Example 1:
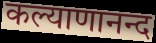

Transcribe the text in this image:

कल्याणानन्द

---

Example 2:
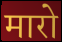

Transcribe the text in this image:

मारो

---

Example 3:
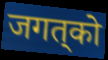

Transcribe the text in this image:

जगत्‌को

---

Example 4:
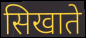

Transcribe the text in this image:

सिखाते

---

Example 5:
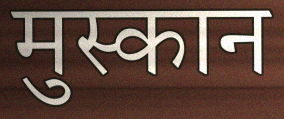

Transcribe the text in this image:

मुस्कान